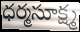
ధర్మసూక్ష్మ